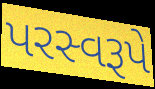
પરસ્વરૂપે